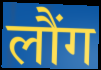
लौंग